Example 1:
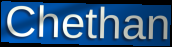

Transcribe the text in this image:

Chethan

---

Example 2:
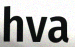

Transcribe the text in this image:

hva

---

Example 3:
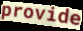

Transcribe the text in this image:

provide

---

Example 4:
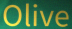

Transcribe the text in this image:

Olive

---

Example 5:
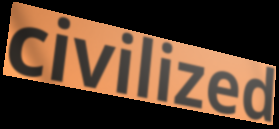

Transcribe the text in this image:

civilized